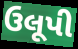
ઉલૂપી